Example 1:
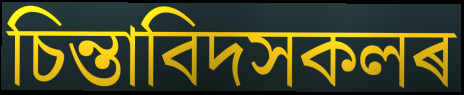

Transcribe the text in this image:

চিন্তাবিদসকলৰ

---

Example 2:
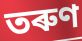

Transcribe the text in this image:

তৰুণ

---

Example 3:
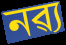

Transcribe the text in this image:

নৱ্য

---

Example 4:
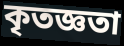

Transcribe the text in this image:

কৃতজ্ঞতা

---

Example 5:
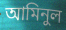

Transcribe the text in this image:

আমিনুল